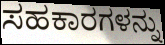
ಸಹಕಾರಗಳನ್ನು